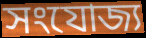
সংযোজ্য